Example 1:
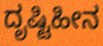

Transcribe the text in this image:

ದೃಷ್ಟಿಹೀನ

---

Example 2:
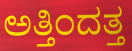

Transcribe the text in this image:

ಅತ್ತಿಂದತ್ತ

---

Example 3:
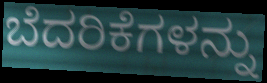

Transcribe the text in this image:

ಬೆದರಿಕೆಗಳನ್ನು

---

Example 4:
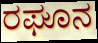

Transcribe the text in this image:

ರಘೂನ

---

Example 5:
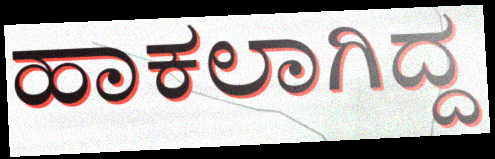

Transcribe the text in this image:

ಹಾಕಲಾಗಿದ್ದ